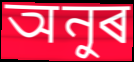
অনুৰ